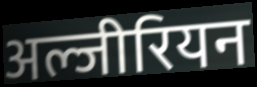
अल्जीरियन